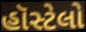
હૉસ્ટેલો